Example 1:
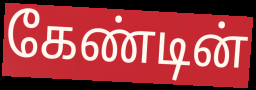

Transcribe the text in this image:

கேண்டின்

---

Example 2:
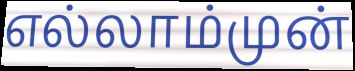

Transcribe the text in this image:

எல்லாம்முன்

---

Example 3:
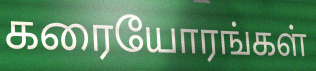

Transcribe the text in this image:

கரையோரங்கள்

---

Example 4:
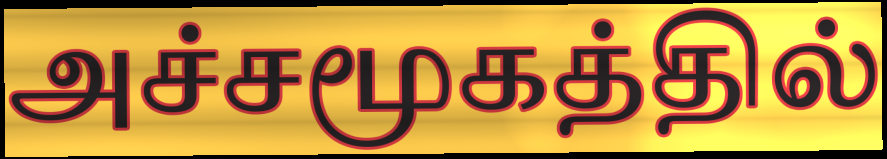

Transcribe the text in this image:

அச்சமூகத்தில்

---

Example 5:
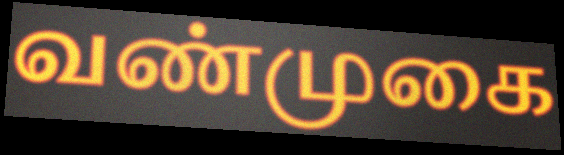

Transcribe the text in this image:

வண்முகை